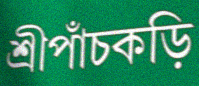
শ্রীপাঁচকড়ি